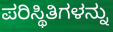
ಪರಿಸ್ಥಿತಿಗಳನ್ನು